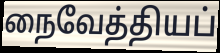
நைவேத்தியப்